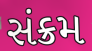
સંક્રમ